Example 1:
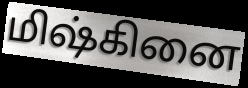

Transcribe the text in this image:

மிஷ்கினை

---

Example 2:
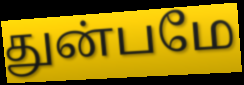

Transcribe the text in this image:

துன்பமே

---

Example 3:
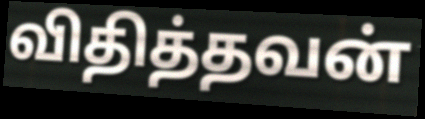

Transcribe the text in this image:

விதித்தவன்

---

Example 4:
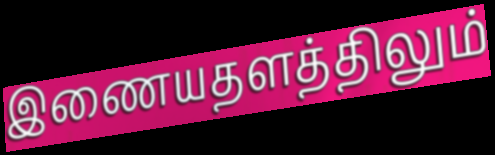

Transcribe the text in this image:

இணையதளத்திலும்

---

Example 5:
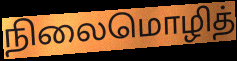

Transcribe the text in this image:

நிலைமொழித்